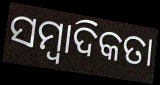
ସମ୍ବାଦିକତା